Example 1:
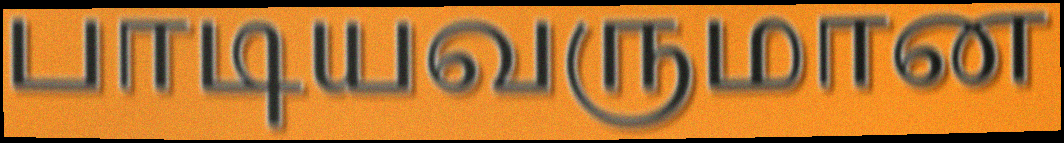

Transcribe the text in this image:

பாடியவருமான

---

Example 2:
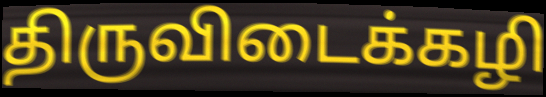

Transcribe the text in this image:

திருவிடைக்கழி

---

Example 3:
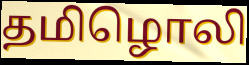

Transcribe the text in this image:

தமிழொலி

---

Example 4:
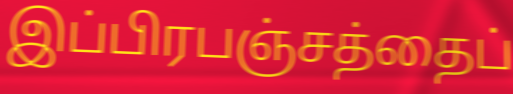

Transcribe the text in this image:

இப்பிரபஞ்சத்தைப்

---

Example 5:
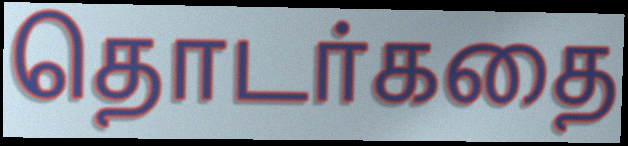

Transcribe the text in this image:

தொடர்கதை